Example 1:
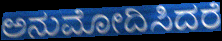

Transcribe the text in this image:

ಅನುಮೋದಿಸಿದರೆ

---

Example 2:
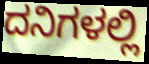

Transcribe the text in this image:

ದನಿಗಳಲ್ಲಿ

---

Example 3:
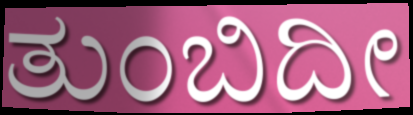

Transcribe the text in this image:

ತುಂಬಿದೀ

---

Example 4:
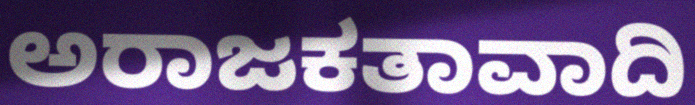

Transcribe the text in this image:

ಅರಾಜಕತಾವಾದಿ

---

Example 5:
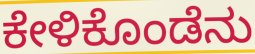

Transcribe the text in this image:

ಕೇಳಿಕೊಂಡೆನು